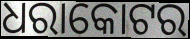
ଧରାକୋଟର